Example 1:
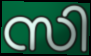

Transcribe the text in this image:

സി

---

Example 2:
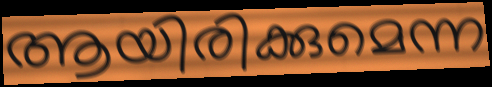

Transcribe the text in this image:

ആയിരിക്കുമെന്ന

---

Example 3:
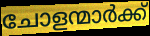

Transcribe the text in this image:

ചോളന്മാർക്ക്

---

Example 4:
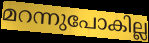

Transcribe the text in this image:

മറന്നുപോകില്ല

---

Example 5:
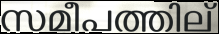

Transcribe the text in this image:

സമീപത്തില്